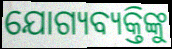
ଯୋଗ୍ୟବ୍ୟକ୍ତିଙ୍କୁ